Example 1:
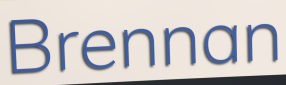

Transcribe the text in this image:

Brennan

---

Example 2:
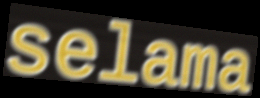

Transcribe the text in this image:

selama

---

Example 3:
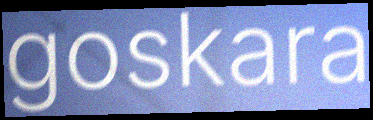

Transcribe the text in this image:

goskara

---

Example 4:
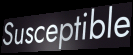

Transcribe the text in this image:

Susceptible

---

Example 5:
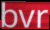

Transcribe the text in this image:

bvr